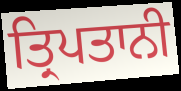
ਤ੍ਰਿਪਤਾਨੀ